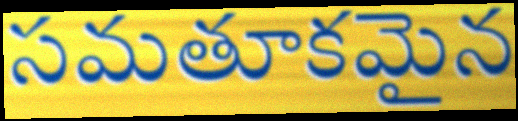
సమతూకమైన